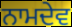
ਨਾਮਦੇਵ